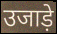
उजाड़े